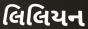
લિલિયન